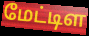
மேட்டிள